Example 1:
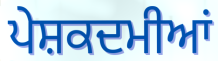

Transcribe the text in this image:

ਪੇਸ਼ਕਦਮੀਆਂ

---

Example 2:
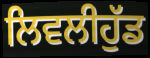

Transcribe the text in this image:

ਲਿਵਲੀਹੁੱਡ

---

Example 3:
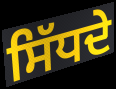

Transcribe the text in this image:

ਸਿੱਧਦੇ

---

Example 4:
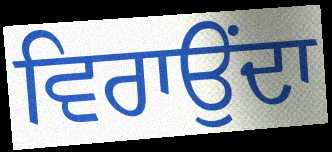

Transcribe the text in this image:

ਵਿਰਾਉਂਦਾ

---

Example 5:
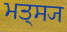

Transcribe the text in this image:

ਮਤ੍ਸ੍ਯ